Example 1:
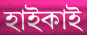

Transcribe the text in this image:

হাইকাই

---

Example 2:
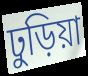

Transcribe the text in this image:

ঢুড়িয়া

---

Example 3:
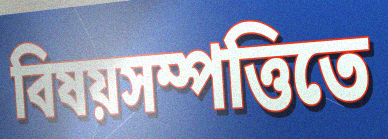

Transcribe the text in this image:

বিষয়সম্পত্তিতে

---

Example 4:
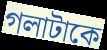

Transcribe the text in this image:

গলাটাকে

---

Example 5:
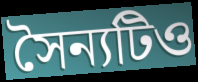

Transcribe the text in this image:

সৈন্যটিও